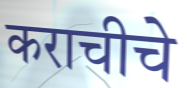
कराचीचे